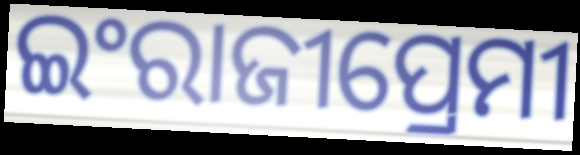
ଇଂରାଜୀପ୍ରେମୀ